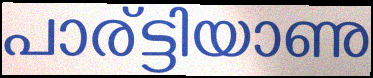
പാര്ട്ടിയാണു